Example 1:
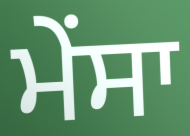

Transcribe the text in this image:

ਮੇਂਸਾ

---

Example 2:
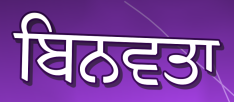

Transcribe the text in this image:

ਬਿਨਵਤਾ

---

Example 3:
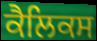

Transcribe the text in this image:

ਕੈਲਿਕਸ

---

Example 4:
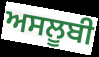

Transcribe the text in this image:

ਅਸਲੂਬੀ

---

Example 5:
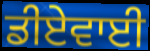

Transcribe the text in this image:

ਡੀਏਵਾਈ